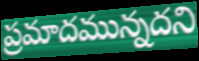
ప్రమాదమున్నదని